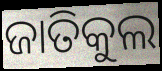
ଜାତିକୁଲ